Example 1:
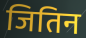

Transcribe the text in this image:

जितिन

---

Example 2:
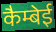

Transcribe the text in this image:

कैम्बेई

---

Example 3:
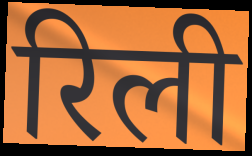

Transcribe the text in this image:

रिली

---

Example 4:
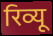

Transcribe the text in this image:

रिव्यू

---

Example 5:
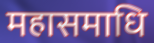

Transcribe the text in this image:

महासमाधि